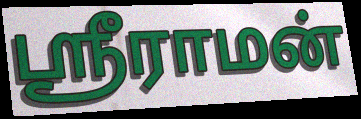
ஸ்ரீராமன்